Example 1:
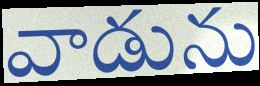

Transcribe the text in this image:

వాడును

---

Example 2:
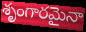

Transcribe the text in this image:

శృంగారమైనా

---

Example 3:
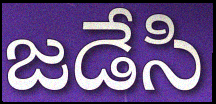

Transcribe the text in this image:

జడేసి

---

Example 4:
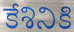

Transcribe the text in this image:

కేశినికి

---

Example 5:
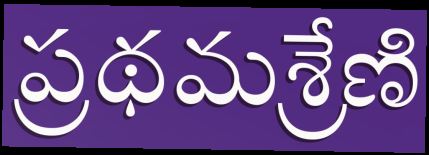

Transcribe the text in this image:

ప్రథమశ్రేణి